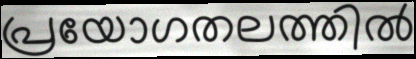
പ്രയോഗതലത്തിൽ